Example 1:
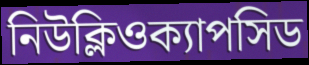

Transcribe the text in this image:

নিউক্লিওক্যাপসিড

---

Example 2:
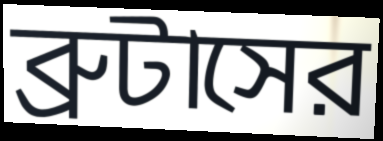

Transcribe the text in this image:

ব্রুটাসের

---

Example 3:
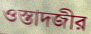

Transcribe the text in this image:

ওস্তাদজীর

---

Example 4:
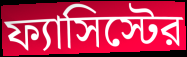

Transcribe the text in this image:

ফ্যাসিস্টের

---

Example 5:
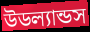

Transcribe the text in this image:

উডল্যান্ডস